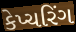
કેપ્ચરિંગ